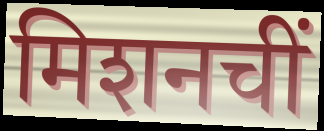
मिशनचीं